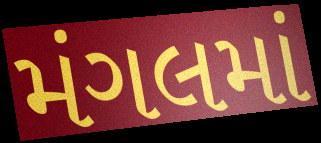
મંગલમાં